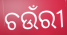
ଚଉଁରୀ